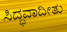
ಸಿದ್ಧವಾದೀತು